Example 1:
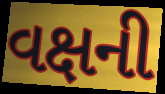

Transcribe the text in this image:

વક્ષની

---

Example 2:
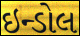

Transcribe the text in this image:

ઇન્ડોલ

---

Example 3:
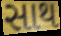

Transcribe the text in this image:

સાથ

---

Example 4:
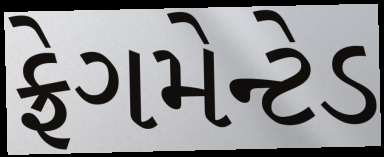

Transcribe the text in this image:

ફ્રેગમેન્ટેડ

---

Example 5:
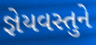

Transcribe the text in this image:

જ્ઞેયવસ્તુને